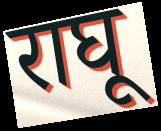
राघू